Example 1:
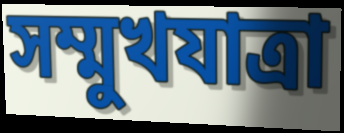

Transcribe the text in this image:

সম্মুখযাত্রা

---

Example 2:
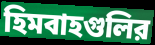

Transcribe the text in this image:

হিমবাহগুলির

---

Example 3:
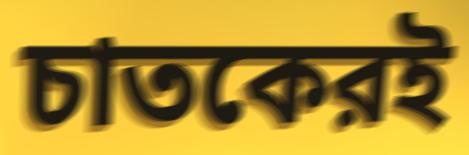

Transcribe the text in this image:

চাতকেরই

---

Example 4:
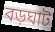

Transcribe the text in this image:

বড়ঘাট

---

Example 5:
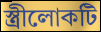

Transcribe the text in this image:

স্ত্রীলোকটি